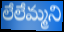
లేలేమ్మని